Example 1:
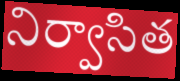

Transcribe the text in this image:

నిర్వాసిత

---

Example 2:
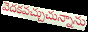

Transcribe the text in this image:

వెదకవచ్చుచున్నాను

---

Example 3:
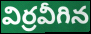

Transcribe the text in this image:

విర్రవీగిన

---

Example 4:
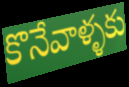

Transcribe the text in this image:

కొనేవాళ్ళకు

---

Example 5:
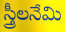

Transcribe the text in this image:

స్త్రీలనేమి